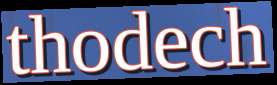
thodech